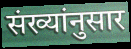
संख्यांनुसार